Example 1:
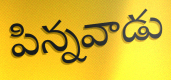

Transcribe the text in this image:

పిన్నవాడు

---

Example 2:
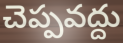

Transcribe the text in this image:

చెప్పవద్దు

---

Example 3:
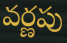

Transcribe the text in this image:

వర్ణపు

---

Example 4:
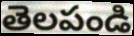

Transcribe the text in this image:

తెలపండి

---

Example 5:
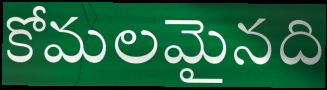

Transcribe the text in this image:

కోమలమైనది